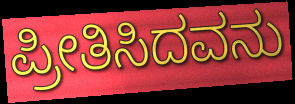
ಪ್ರೀತಿಸಿದವನು